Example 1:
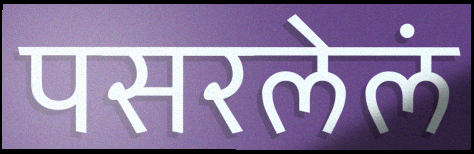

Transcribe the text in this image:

पसरलेलं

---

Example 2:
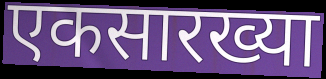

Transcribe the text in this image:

एकसारख्या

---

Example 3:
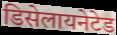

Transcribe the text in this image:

डिसेलायनेटेड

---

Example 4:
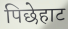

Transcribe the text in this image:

पिछेहाट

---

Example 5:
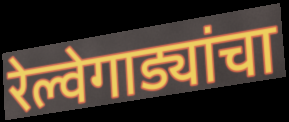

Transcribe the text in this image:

रेल्वेगाड्यांचा